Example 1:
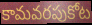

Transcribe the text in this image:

కామవరపుకోట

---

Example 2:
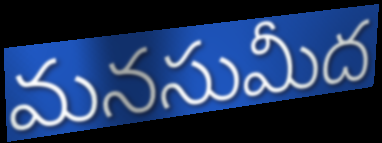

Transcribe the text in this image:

మనసుమీద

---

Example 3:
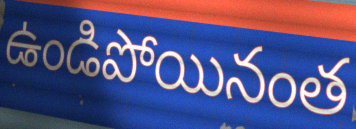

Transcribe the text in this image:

ఉండిపోయినంత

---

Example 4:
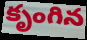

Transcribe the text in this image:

కృంగిన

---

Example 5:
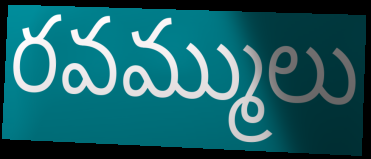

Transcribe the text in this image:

రవమ్ములు